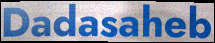
Dadasaheb